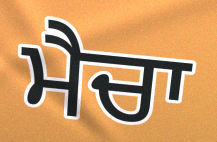
ਮੈਚਾ